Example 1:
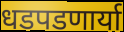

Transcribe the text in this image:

धडपडणार्या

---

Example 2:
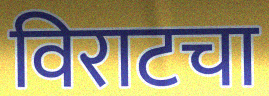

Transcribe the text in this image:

विराटचा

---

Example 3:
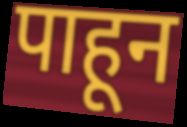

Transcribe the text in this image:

पाहून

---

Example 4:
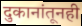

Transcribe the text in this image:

दुकानांतूनही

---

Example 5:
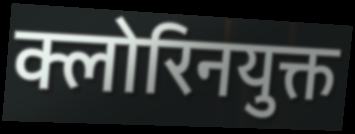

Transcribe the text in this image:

क्लोरिनयुक्त